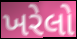
ખરેલો